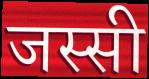
जस्सी